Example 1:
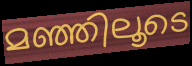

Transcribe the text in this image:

മഞ്ഞിലൂടെ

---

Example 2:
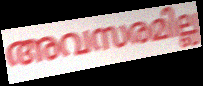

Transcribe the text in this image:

അവസരമില്ല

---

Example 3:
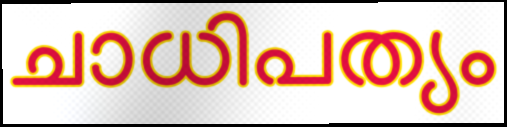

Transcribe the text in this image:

ചാധിപത്യം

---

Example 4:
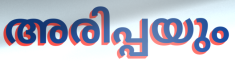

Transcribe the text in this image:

അരിപ്പയും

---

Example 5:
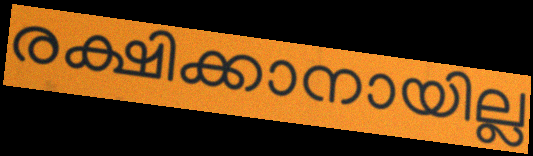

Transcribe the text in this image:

രക്ഷിക്കാനായില്ല